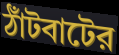
ঠাঁটবাটের